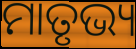
ମାତୃଭ୍ୟ